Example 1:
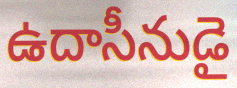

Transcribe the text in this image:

ఉదాసీనుడై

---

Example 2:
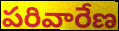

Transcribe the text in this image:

పరివారేణ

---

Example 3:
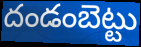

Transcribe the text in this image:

దండంబెట్టు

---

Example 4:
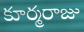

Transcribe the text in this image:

కూర్మరాజు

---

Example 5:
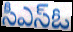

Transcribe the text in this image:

సీఎస్ఓ